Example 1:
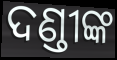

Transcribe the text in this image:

ଦଣ୍ଡୀଙ୍କ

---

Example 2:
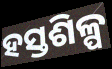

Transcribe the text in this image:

ହସ୍ତଶିଳ୍ପ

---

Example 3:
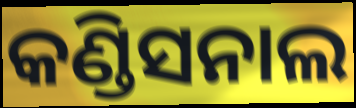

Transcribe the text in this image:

କଣ୍ଡିସନାଲ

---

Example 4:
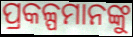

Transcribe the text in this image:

ପ୍ରକଳ୍ପମାନଙ୍କୁ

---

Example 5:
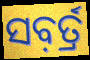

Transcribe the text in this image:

ସବ଼ର୍ତ୍ର